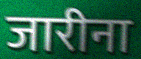
जारीना